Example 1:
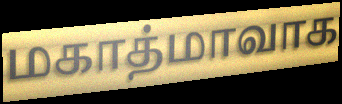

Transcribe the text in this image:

மகாத்மாவாக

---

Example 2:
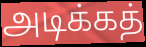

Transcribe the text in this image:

அடிக்கத்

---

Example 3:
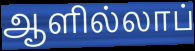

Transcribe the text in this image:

ஆளில்லாப்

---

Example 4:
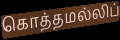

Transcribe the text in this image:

கொத்தமல்லிப்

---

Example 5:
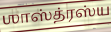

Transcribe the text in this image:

ஶாஸ்த்ரஸ்ய